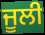
ਜੂਲੀ